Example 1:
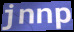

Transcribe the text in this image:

jnnp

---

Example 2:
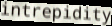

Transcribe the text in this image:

intrepidity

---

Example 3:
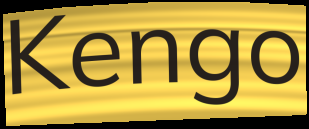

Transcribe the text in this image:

Kengo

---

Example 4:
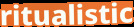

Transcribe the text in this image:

ritualistic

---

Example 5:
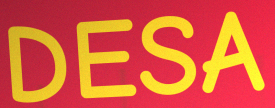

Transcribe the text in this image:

DESA